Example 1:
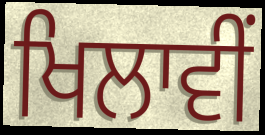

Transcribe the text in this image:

ਖਿਲਾਵੀਂ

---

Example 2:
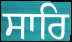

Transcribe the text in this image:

ਸਾਰਿ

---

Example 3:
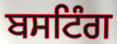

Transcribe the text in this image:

ਬਸਟਿੰਗ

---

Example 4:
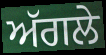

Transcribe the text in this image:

ਅੱਗਲੇ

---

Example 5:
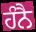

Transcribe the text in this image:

ਹੰਨੈ